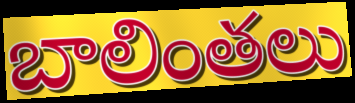
బాలింతలు